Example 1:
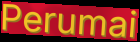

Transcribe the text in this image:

Perumai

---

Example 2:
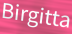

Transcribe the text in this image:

Birgitta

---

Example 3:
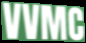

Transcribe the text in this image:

VVMC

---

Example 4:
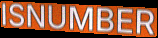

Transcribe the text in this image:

ISNUMBER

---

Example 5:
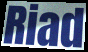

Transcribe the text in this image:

Riad